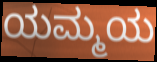
ಯಮ್ಮಯ